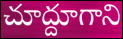
చూద్దూగాని